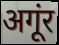
अगूंर